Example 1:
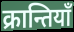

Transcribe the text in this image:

क्रान्तियाँ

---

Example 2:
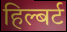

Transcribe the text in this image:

हिल्बर्ट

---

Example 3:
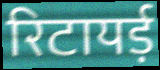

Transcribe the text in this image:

रिटायर्ड़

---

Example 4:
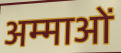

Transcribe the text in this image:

अम्माओं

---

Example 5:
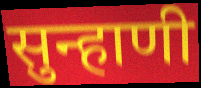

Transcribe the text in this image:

सुन्हाणी